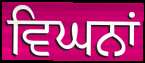
ਵਿਘਨਾਂ